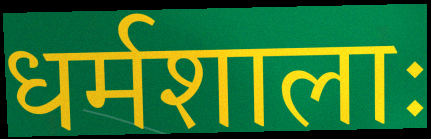
धर्मशालाः